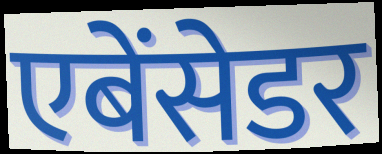
एबेंसेडर